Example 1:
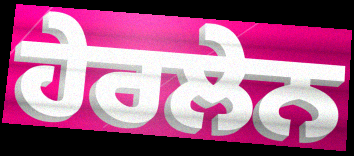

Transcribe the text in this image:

ਹੇਰਲੇਨ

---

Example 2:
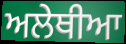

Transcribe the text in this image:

ਅਲੇਥੀਆ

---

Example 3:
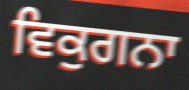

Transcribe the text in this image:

ਵਿਕੁਗਨਾ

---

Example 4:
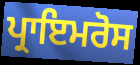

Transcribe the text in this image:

ਪ੍ਰਾਇਮਰੋਸ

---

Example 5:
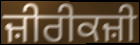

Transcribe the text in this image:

ਜ਼ੀਰੀਕਜ਼ੀ